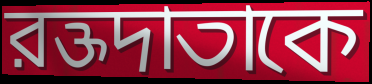
রক্তদাতাকে